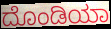
ದೊಂಡಿಯಾ